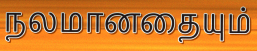
நலமானதையும்